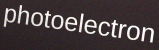
photoelectron